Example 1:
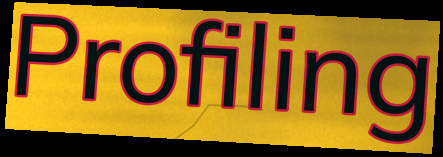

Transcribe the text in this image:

Profiling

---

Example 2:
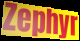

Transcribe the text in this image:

Zephyr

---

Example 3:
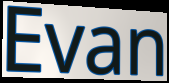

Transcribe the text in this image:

Evan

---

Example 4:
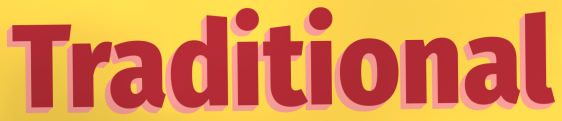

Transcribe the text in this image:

Traditional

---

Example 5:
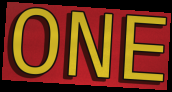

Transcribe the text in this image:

ONE